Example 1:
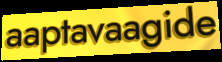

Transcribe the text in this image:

aaptavaagide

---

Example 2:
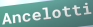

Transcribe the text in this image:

Ancelotti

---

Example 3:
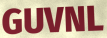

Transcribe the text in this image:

GUVNL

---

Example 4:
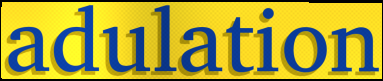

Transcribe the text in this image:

adulation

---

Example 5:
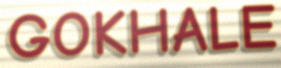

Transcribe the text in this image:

GOKHALE